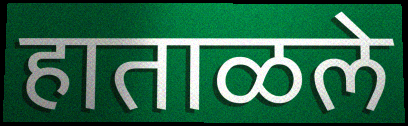
हाताळले